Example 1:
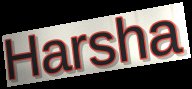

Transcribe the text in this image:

Harsha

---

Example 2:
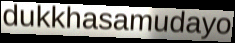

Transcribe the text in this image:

dukkhasamudayo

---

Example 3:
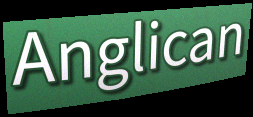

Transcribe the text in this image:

Anglican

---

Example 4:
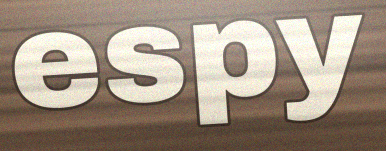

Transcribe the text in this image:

espy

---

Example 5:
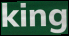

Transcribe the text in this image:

king